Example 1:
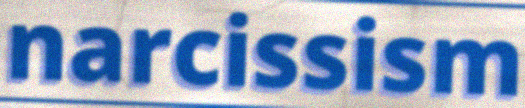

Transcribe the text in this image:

narcissism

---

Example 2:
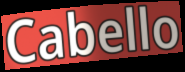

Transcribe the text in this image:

Cabello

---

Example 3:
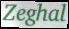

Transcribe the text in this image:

Zeghal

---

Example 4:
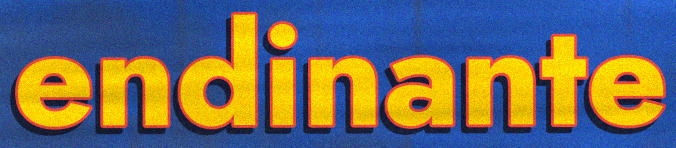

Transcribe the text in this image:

endinante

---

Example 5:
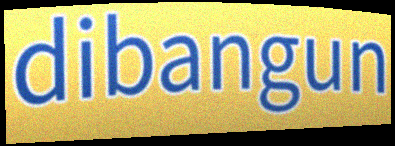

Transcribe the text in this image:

dibangun